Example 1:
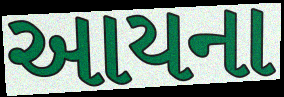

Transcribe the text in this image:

આયના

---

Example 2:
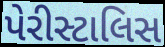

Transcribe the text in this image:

પેરીસ્ટાલિસ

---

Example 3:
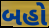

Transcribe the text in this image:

બહો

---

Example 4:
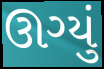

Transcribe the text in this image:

ઊગ્યું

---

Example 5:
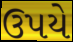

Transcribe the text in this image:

ઉપયે